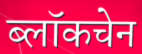
ब्लॉकचेन